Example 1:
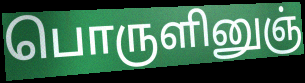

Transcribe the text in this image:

பொருளினுஞ்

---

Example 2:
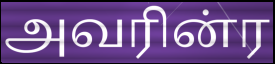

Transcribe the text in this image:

அவரின்ர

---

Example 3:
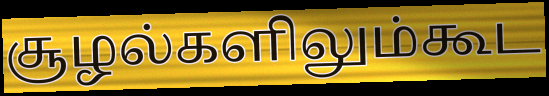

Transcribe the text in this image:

சூழல்களிலும்கூட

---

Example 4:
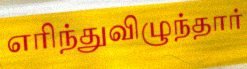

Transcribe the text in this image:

எரிந்துவிழுந்தார்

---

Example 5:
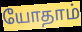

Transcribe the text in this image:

யோதாம்